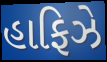
હાફિઝે